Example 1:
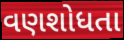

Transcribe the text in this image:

વણશોધતા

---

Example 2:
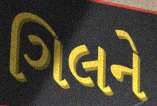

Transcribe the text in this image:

ગિલને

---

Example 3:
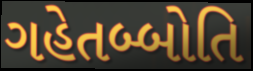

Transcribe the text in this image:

ગહેતબ્બોતિ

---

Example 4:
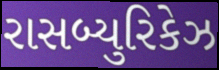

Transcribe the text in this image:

રાસબ્યુરિકેઝ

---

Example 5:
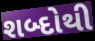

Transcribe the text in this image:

શબ્દોથી